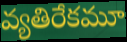
వ్యతిరేకమూ